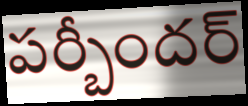
పర్బీందర్